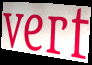
vert